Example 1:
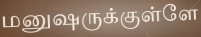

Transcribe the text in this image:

மனுஷருக்குள்ளே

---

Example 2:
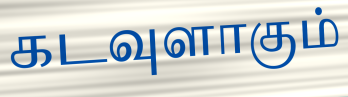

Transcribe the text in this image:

கடவுளாகும்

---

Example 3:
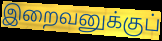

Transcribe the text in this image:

இறைவனுக்குப்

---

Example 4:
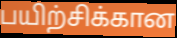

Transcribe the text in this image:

பயிற்சிக்கான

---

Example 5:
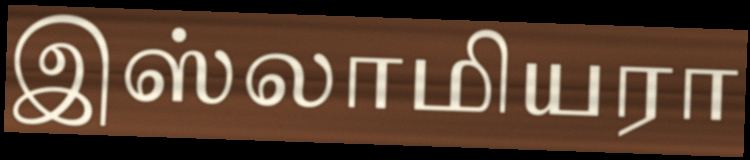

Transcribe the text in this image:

இஸ்லாமியரா